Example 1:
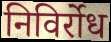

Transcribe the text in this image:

निविर्रोध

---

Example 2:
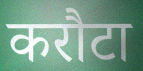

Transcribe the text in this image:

करौटा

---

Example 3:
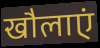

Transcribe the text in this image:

खौलाएं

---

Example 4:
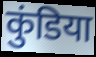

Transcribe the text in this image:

कुंडिया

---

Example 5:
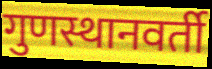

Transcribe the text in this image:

गुणस्थानवर्ती